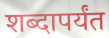
शब्दापर्यंत